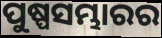
ପୁଷ୍ପସମ୍ଭାରର